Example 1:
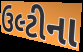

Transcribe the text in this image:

ઉલ્ટીના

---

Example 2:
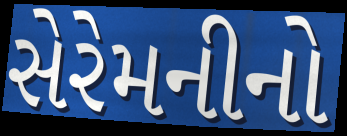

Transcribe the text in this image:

સેરેમનીનો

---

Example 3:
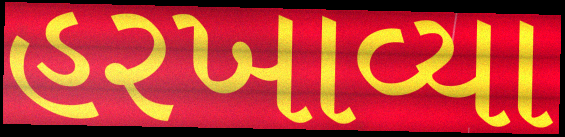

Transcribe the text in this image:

હરખાવ્યા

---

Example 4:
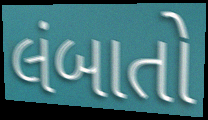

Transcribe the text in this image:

લંબાતો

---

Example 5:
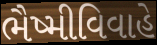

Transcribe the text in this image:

ભૈષ્મીવિવાહે